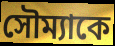
সৌম্যাকে